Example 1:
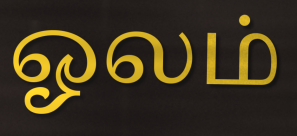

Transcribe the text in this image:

ஓலம்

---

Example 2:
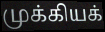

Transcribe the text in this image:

முக்கியக்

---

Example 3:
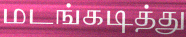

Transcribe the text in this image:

மடங்கடித்து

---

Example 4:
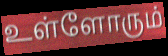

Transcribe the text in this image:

உள்ளோரும்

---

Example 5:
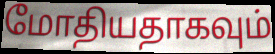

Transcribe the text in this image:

மோதியதாகவும்